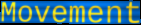
Movement